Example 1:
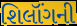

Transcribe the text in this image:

શિલૉંગની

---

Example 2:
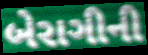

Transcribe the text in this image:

બેરાગીની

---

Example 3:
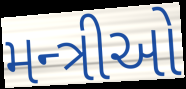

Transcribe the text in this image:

મન્ત્રીઓ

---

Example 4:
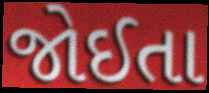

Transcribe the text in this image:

જોઈતા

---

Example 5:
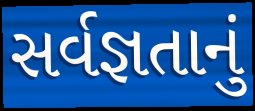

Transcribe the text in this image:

સર્વજ્ઞતાનું